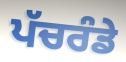
ਪੱਚਰੰਡੇ